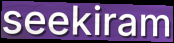
seekiram